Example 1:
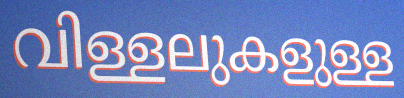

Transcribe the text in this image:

വിള്ളലുകളുള്ള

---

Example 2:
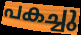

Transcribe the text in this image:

പകച്ചു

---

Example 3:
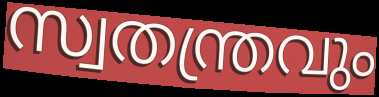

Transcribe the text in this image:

സ്വതന്ത്രവും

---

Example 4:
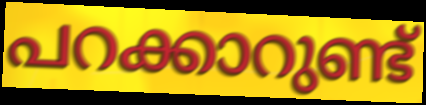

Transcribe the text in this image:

പറക്കാറുണ്ട്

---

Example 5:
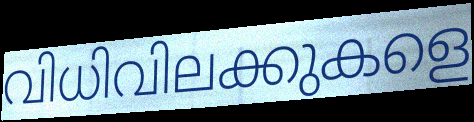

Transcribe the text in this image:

വിധിവിലക്കുകളെ